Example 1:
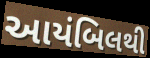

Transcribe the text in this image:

આયંબિલથી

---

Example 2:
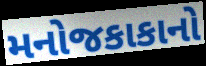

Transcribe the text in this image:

મનોજકાકાનો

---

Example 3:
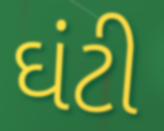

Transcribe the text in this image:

ઘંટી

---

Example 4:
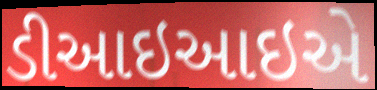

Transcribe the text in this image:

ડીઆઇઆઇએ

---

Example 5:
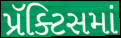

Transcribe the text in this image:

પ્રૅક્ટિસમાં